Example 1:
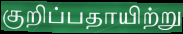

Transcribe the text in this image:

குறிப்பதாயிற்று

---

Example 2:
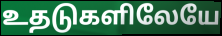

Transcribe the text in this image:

உதடுகளிலேயே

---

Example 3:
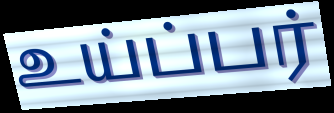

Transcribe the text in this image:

உய்ப்பர்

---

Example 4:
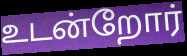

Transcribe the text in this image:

உடன்றோர்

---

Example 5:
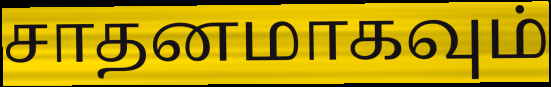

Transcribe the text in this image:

சாதனமாகவும்